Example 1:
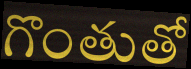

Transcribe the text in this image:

గొంతుతో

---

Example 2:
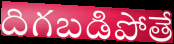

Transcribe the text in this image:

దిగబడిపోతే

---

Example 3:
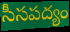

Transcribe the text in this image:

సీసపద్యం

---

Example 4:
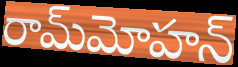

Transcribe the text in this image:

రామ్‌మోహన్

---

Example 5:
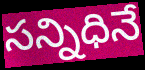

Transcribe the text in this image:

సన్నిధినే